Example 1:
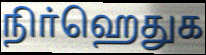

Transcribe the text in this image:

நிர்ஹெதுக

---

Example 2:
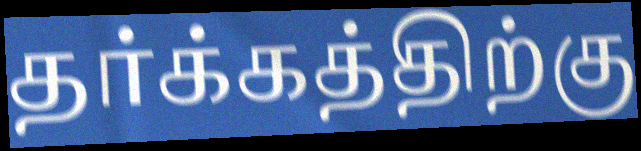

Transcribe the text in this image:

தர்க்கத்திற்கு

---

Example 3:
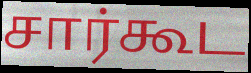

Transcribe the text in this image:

சார்கூட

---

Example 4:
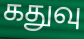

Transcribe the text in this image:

கதுவு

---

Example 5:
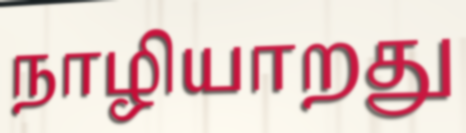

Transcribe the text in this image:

நாழியாறது